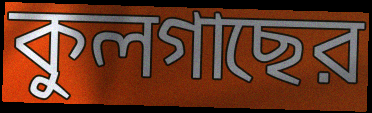
কুলগাছের